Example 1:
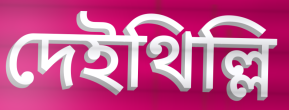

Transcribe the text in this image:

দেইথিল্লি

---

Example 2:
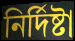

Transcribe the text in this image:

নির্দিষ্টা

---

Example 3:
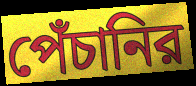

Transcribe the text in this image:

পেঁচানির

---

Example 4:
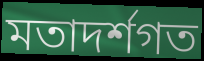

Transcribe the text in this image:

মতাদর্শগত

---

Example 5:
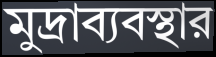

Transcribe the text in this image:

মুদ্রাব্যবস্থার